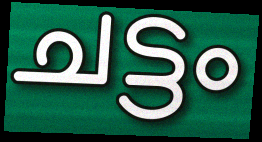
ചട്ടം